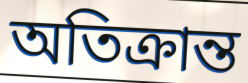
অতিক্ৰান্ত